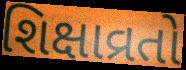
શિક્ષાવ્રતો